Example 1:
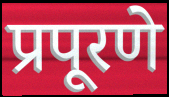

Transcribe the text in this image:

प्रपूरणे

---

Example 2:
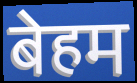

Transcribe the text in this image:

बेहम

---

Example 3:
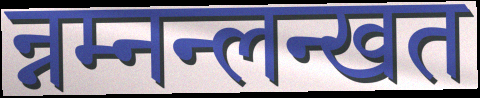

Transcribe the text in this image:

न्नम्नन्लन्खत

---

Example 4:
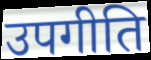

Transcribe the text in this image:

उपगीति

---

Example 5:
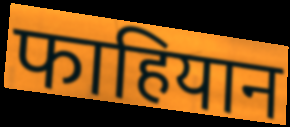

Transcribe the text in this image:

फाहियान